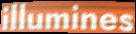
illumines